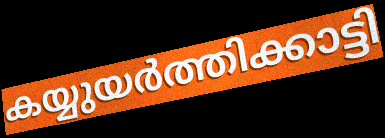
കയ്യുയർത്തിക്കാട്ടി